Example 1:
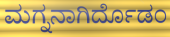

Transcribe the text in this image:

ಮಗ್ನನಾಗಿರ್ದೊಡಂ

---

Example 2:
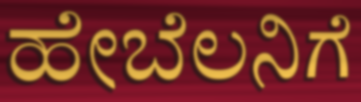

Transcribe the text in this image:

ಹೇಬೆಲನಿಗೆ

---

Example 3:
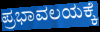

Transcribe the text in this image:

ಪ್ರಭಾವಲಯಕ್ಕೆ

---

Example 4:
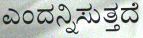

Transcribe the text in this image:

ಎಂದನ್ನಿಸುತ್ತದೆ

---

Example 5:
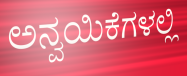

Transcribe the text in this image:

ಅನ್ವಯಿಕೆಗಳಲ್ಲಿ